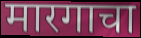
मारगाचा